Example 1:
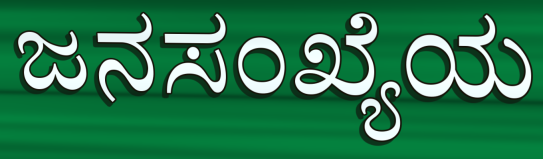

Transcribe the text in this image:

ಜನಸಂಖ್ಯೆಯ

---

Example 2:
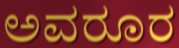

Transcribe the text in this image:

ಅವರೂರ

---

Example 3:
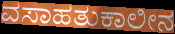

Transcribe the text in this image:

ವಸಾಹತುಕಾಲೀನ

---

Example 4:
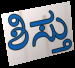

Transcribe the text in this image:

ಶಿಸ್ತು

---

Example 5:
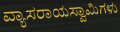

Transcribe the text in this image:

ವ್ಯಾಸರಾಯಸ್ವಾಮಿಗಳು